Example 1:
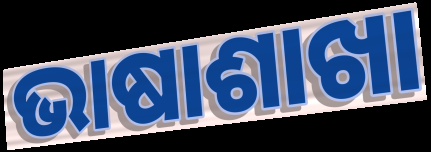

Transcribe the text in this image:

ଭାଷାଶାଖା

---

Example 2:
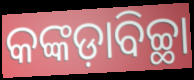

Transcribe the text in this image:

କଙ୍କଡ଼ାବିଚ୍ଛା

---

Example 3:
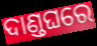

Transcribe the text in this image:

ଦାଣ୍ଡଘରେ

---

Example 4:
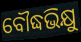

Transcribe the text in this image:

ବୌଦ୍ଧଭିକ୍ଷୁ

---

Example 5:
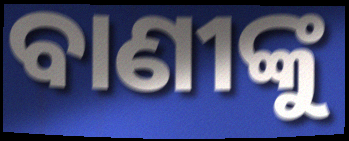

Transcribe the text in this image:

ବାଣୀଙ୍କୁ